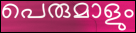
പെരുമാളും